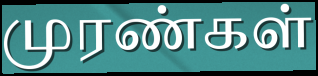
முரண்கள்